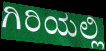
ಗಿರಿಯಲ್ಲಿ